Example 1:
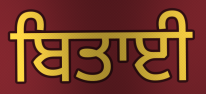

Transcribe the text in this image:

ਬਿਤਾਈ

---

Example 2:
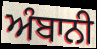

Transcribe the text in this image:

ਅੰਬਾਨੀ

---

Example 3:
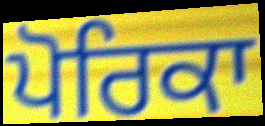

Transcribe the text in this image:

ਪੋਰਿਕਾ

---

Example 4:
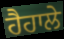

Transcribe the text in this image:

ਹੈਹਾਲੇ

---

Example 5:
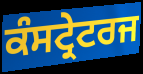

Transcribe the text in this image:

ਕੰਸਟ੍ਰੇਟਰਜ